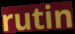
rutin